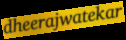
dheerajwatekar